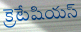
క్రెటేషియస్